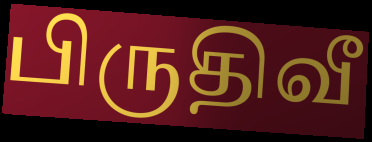
பிருதிவீ